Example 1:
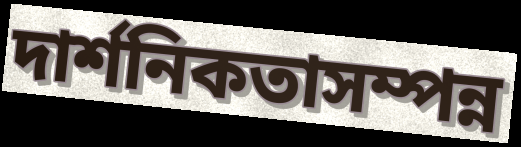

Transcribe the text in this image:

দার্শনিকতাসম্পন্ন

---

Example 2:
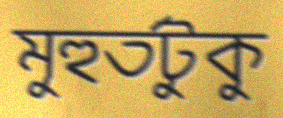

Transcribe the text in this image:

মুহুর্তটুকু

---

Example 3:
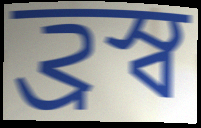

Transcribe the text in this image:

হ্রস্ব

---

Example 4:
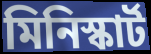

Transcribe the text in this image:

মিনিস্কার্ট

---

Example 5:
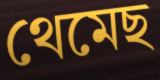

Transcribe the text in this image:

থেমেছ